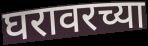
घरावरच्या